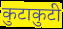
कुटाकुटी